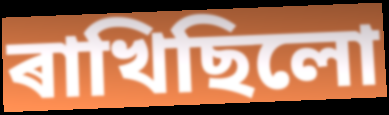
ৰাখিছিলো